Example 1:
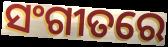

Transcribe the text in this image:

ସଂଗୀତରେ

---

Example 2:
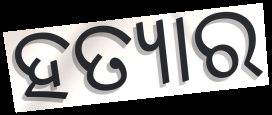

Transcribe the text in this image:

ହତ୍ୟାର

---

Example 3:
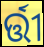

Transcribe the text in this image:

ର୍ତ୍ତୀ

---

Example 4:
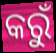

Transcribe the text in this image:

କରୁଁ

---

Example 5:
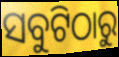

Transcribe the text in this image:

ସବୁଟିଠାରୁ